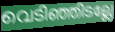
വെടിഞ്ഞിടല്ലേ